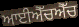
ਆਈਐੱਚਐੱਚ